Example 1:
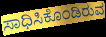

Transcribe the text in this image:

ಸಾಧಿಸಿಕೊಂಡಿರುವ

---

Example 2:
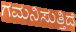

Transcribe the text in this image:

ಗಮನಿಸುತ್ತಿದೆ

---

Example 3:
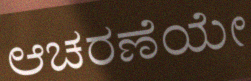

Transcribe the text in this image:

ಆಚರಣೆಯೇ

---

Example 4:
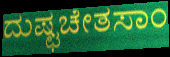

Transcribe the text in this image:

ದುಷ್ಟಚೇತಸಾಂ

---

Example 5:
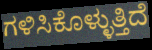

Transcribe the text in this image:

ಗಳಿಸಿಕೊಳ್ಳುತ್ತಿದೆ